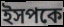
ইসপকে